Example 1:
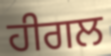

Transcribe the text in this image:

ਹੀਗਲ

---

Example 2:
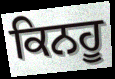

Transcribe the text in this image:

ਕਿਨਹੂ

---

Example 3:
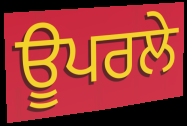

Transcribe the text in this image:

ਊਪਰਲੇ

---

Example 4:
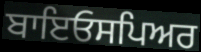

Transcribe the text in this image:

ਬਾਇਓਸਪਿਅਰ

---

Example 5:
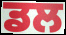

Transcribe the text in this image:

ਡਲ